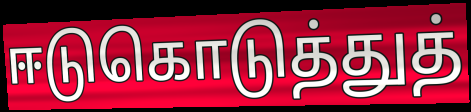
ஈடுகொடுத்துத்